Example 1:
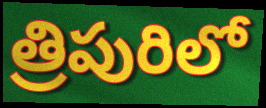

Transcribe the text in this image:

త్రిపురిలో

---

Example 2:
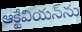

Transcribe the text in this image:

ఆక్టేవియన్‌ను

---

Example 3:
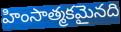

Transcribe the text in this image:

హింసాత్మకమైనది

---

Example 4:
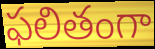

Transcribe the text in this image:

ఫలితంగా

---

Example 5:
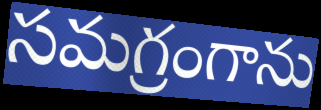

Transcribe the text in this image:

సమగ్రంగాను